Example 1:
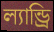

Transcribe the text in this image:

ল্যান্ড্রি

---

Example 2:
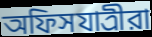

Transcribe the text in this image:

অফিসযাত্রীরা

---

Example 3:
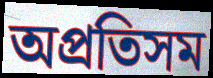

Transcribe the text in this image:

অপ্রতিসম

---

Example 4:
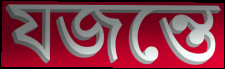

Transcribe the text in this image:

যজন্তে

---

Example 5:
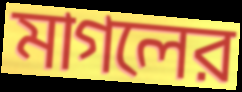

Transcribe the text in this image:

মাগলের